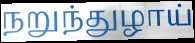
நறுந்துழாய்